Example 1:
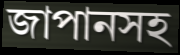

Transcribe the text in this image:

জাপানসহ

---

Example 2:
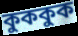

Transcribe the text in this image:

কুককুক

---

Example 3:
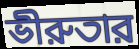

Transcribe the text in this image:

ভীরুতার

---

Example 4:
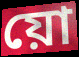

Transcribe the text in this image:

য়ো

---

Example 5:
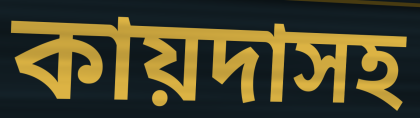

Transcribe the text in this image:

কায়দাসহ